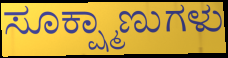
ಸೂಕ್ಷ್ಮಾಣುಗಳು